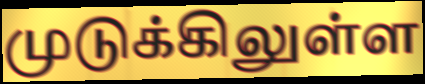
முடுக்கிலுள்ள